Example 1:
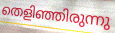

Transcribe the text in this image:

തെളിഞ്ഞിരുന്നു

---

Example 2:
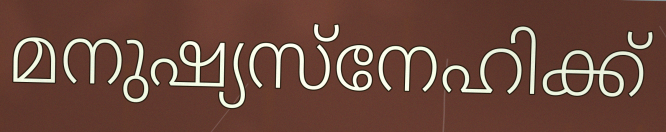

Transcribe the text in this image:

മനുഷ്യസ്നേഹിക്ക്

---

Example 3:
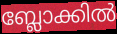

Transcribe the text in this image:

ബ്ലോക്കിൽ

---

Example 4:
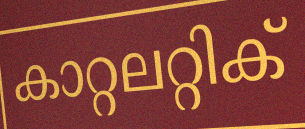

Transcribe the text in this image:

കാറ്റലറ്റിക്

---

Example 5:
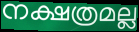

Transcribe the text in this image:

നക്ഷത്രമല്ല